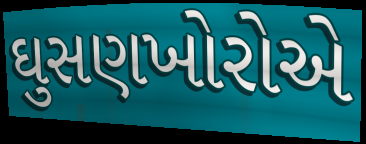
ઘુસણખોરોએ